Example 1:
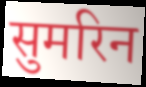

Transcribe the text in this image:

सुमरिन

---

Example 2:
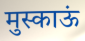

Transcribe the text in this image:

मुस्काऊं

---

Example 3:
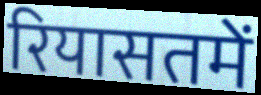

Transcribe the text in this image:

रियासतमें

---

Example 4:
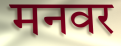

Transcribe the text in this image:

मनवर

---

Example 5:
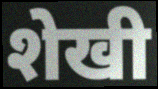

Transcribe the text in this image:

शेखी